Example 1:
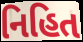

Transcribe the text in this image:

નિહિત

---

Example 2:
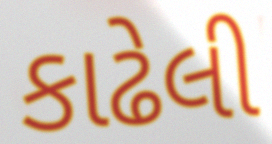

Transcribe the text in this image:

કાઢેલી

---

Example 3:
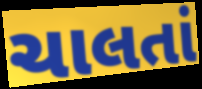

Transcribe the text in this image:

ચાલતાં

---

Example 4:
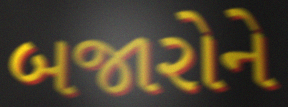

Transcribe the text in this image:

બજારોને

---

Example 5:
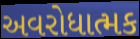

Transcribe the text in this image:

અવરોધાત્મક